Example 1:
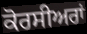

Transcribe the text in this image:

ਕੋਰਸੀਅਰਾਂ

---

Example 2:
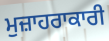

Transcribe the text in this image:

ਮੁਜ਼ਾਹਰਾਕਾਰੀ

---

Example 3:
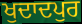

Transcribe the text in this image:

ਖੁਦਾਦਪੁਰ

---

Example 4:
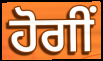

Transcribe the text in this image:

ਹੋਗੀਂ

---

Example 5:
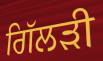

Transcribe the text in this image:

ਗਿੱਲੜੀ